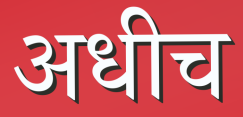
अधीच